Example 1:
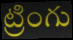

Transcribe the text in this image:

ట్రింగు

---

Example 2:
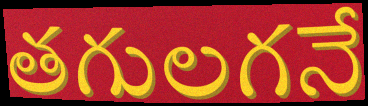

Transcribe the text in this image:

తగులగనే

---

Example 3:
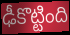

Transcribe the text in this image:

ఢీకొట్టింది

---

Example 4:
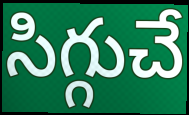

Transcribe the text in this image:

సిగ్గుచే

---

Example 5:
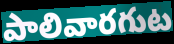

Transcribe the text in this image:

పాలివారగుట